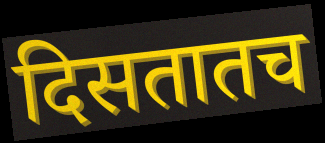
दिसतातच